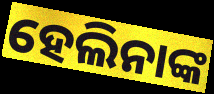
ହେଲିନାଙ୍କ